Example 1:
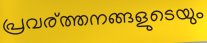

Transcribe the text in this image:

പ്രവര്ത്തനങ്ങളുടെയും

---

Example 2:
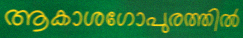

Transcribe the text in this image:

ആകാശഗോപുരത്തിൽ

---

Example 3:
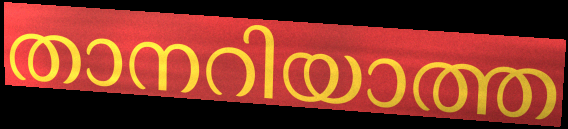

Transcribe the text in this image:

താനറിയാത്ത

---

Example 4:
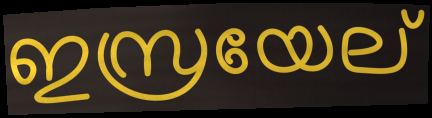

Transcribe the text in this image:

ഇസ്രയേല്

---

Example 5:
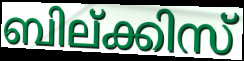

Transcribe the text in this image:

ബില്ക്കിസ്